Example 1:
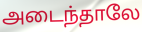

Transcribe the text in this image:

அடைந்தாலே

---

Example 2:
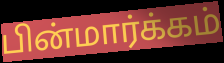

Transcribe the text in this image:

பின்மார்க்கம்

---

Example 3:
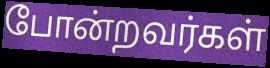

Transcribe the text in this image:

போன்றவர்கள்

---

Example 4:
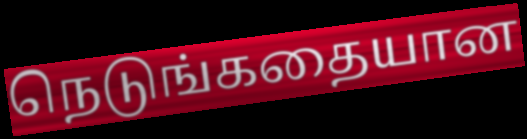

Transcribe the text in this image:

நெடுங்கதையான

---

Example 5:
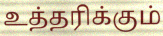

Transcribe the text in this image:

உத்தரிக்கும்